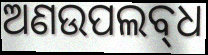
ଅଣଉପଲବ୍‌ଧ